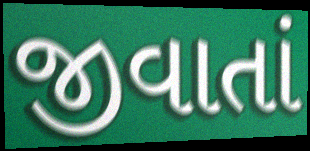
જીવાતાં